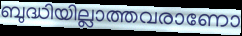
ബുദ്ധിയില്ലാത്തവരാണോ